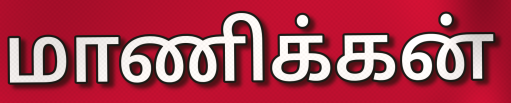
மாணிக்கன்